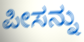
ಪೀಸನ್ನು